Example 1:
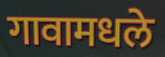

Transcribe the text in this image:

गावामधले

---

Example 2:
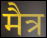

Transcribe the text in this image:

मैत्र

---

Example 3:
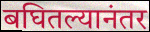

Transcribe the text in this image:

बघितल्यानंतर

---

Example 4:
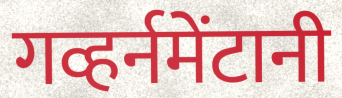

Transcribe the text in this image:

गव्हर्नमेंटानी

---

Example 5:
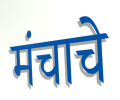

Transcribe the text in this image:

मंचाचे